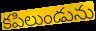
కపిలుండును